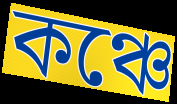
কঞ্চে